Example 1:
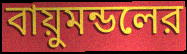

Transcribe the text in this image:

বায়ুমন্ডলের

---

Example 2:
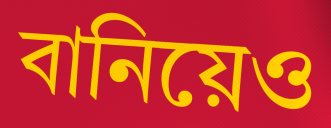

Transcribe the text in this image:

বানিয়েও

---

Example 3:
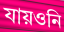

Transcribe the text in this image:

যায়ওনি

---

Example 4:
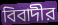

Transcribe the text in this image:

বিবাদীর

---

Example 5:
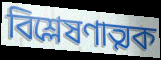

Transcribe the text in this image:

বিশ্লেষণাত্মক